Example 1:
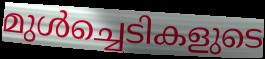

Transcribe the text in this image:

മുൾച്ചെടികളുടെ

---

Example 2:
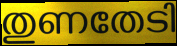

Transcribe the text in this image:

തുണതേടി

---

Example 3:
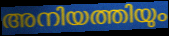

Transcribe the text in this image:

അനിയത്തിയും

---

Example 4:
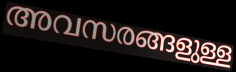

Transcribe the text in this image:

അവസരങ്ങളുള്ള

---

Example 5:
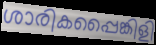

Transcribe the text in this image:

ശാരികപ്പൈങ്കിളി